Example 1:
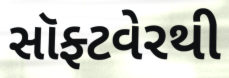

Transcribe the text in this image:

સૉફ્ટવેરથી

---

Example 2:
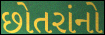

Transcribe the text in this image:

છોતરાંનો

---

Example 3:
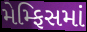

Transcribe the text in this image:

મેમ્ફિસમાં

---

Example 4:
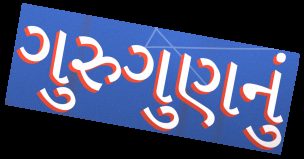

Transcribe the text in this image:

ગુરુગુણનું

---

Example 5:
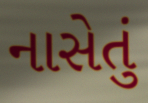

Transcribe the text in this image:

નાસેતું